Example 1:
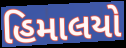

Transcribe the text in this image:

હિમાલયો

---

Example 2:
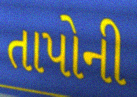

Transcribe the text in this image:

તાપોની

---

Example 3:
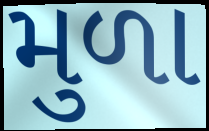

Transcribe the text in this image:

મુળા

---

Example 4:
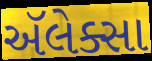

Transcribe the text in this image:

ઍલેક્સા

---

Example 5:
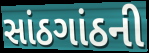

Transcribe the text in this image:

સાંઠગાંઠની